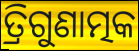
ତ୍ରିଗୁଣାତ୍ମକ